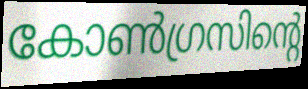
കോൺഗ്രസിന്റെ